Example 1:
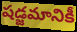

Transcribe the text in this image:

షడ్జమానికీ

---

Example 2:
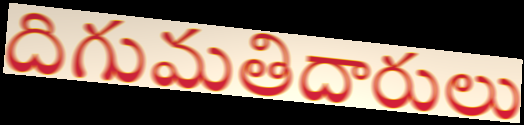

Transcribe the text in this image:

దిగుమతిదారులు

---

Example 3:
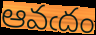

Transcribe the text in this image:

ఆవఁదం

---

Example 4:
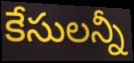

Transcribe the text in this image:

కేసులన్నీ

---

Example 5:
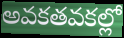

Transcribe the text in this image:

అవకతవకల్లో